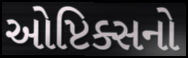
ઓપ્ટિક્સનો